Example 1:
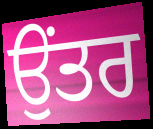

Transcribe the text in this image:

ਉਂਤਰ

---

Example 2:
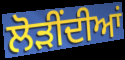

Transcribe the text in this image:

ਲੋੜੀਂਦੀਆਂ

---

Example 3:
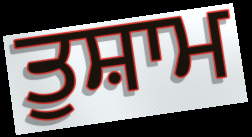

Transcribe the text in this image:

ਤੁਸ਼ਾਮ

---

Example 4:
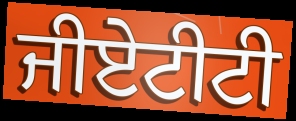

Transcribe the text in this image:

ਜੀਏਟੀਟੀ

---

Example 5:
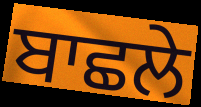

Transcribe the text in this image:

ਬਾਛਲੇ